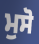
ਮੁਸੋ